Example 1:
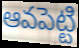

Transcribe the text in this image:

ఆవపెట్టి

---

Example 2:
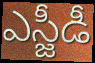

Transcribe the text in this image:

ఎస్జీడీ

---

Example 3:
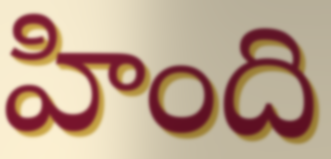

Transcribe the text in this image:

హింది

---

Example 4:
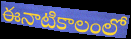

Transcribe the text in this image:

ఈనాటికాలంలో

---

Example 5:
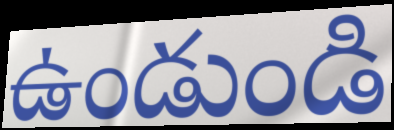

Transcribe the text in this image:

ఉండుండి